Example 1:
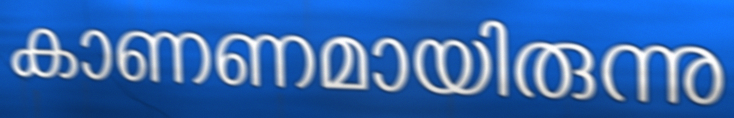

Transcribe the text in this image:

കാണണമായിരുന്നു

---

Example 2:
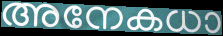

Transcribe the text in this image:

അനേകധാ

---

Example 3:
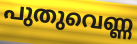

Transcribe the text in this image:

പുതുവെണ്ണ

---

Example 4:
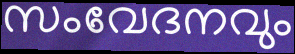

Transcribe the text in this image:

സംവേദനവും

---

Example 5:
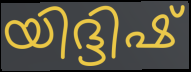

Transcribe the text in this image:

യിദ്ദിഷ്